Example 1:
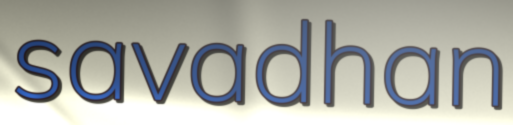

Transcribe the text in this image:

savadhan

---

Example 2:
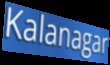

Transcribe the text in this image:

Kalanagar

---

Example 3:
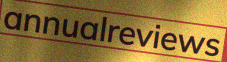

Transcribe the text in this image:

annualreviews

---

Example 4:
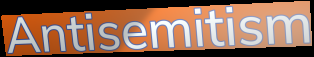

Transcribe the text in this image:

Antisemitism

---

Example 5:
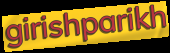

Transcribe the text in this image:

girishparikh